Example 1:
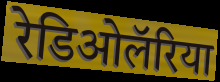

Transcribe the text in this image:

रेडिओलॅरिया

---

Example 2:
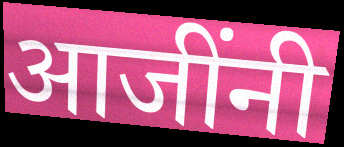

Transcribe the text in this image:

आजींनी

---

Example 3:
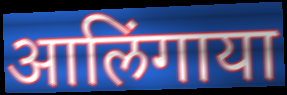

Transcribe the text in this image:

आलिंगाया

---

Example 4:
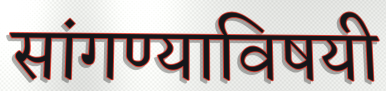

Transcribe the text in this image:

सांगण्याविषयी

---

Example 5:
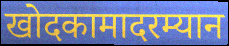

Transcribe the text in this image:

खोदकामादरम्यान